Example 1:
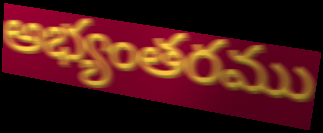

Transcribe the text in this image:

అభ్యంతరము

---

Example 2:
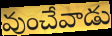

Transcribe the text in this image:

వుంచేవాడు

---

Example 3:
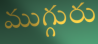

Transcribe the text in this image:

ముగ్గురు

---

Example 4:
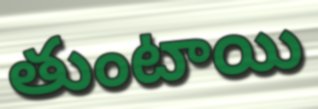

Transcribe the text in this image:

తుంటాయి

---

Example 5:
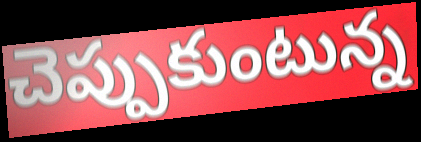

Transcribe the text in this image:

చెప్పుకుంటున్న